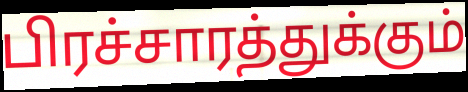
பிரச்சாரத்துக்கும்